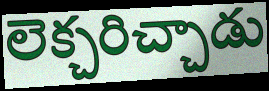
లెక్చరిచ్చాడు